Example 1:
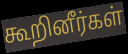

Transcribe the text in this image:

கூறினீர்கள்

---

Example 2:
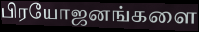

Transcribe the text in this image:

பிரயோஜனங்களை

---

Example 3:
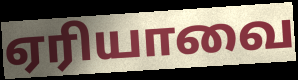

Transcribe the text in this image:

ஏரியாவை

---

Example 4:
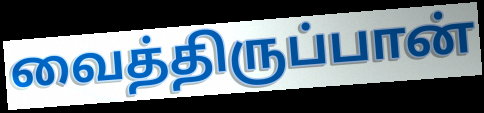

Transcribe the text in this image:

வைத்திருப்பான்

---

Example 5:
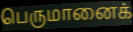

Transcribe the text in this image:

பெருமானைக்